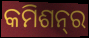
କମିଶନ୍‌ର